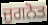
ਜੁਗਨੋਤ